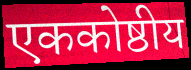
एककोष्ठीय